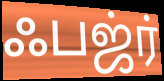
ஃபஜ்ர்